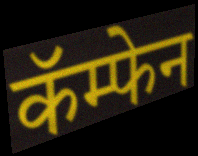
कॅम्फेन